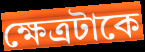
ক্ষেত্রটাকে